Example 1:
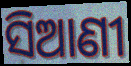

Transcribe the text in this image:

ସିଆଣୀ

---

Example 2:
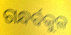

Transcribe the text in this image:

ଗନ୍ଧର୍ବକୁଳ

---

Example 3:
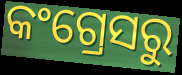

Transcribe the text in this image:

କଂଗ୍ରେସରୁ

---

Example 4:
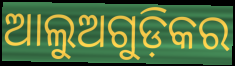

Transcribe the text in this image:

ଆଲୁଅଗୁଡ଼ିକର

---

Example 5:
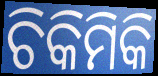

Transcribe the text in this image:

ଚିକିମିକି